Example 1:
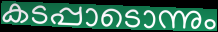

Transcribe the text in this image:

കടപ്പാടൊന്നും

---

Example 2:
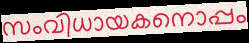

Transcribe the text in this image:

സംവിധായകനൊപ്പം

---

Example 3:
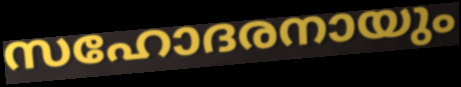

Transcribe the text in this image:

സഹോദരനായും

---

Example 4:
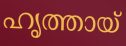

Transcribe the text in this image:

ഹൃത്തായ്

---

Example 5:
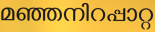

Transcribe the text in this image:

മഞ്ഞനിറപ്പാറ്റ